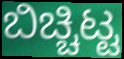
ಬಿಚ್ಚಿಟ್ಟ